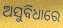
ଅସୁବିଧାରେ